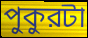
পুকুরটা